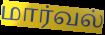
மார்வல்